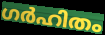
ഗർഹിതം